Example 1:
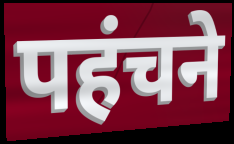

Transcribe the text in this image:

पहंचने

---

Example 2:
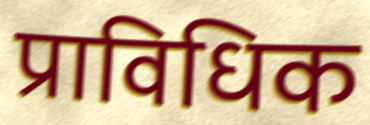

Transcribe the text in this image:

प्राविधिक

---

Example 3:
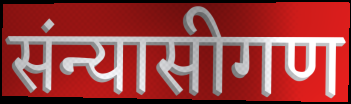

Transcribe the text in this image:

संन्यासीगण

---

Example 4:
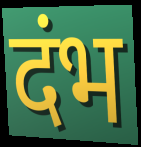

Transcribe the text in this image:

दंभ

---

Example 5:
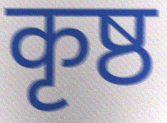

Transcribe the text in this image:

कृष्ठ